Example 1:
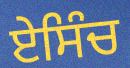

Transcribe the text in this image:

ਏਸਿੰਚ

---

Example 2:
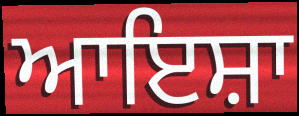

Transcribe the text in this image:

ਆਇਸ਼ਾ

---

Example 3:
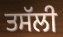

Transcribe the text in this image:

ਤਸੱਲੀ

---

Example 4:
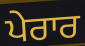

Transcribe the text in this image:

ਪੇਰਾਰ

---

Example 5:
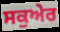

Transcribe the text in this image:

ਸਕੁਅੇਰ